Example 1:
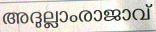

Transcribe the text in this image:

അദുല്ലാംരാജാവ്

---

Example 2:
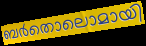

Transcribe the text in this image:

ബർതൊലൊമായി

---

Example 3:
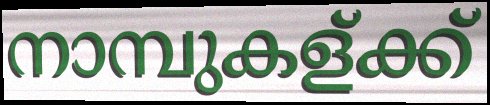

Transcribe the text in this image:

നാമ്പുകള്ക്ക്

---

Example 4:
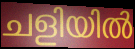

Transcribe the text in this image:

ചളിയിൽ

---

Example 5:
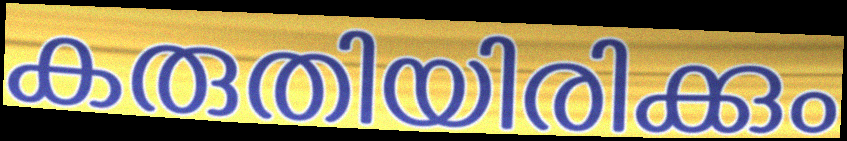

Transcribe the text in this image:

കരുതിയിരിക്കും